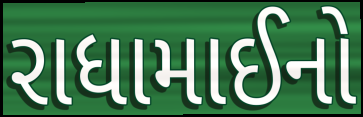
રાધામાઈનો